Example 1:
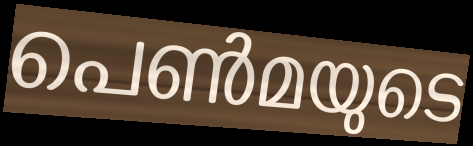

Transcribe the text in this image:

പെൺമയുടെ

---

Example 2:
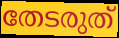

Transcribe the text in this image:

തേടരുത്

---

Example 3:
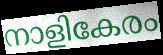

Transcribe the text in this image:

നാളികേരം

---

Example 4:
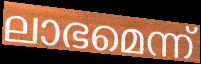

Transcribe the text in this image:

ലാഭമെന്ന്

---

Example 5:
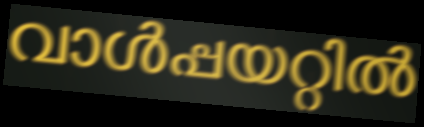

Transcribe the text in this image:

വാൾപ്പയറ്റിൽ